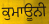
ਕੁਮਾਊਨੀ